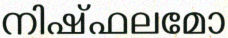
നിഷ്ഫലമോ